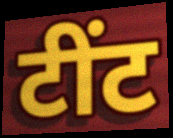
टींट